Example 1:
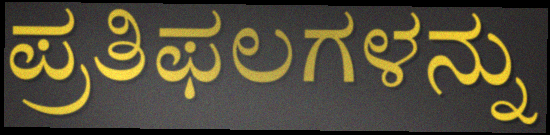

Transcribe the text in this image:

ಪ್ರತಿಫಲಗಳನ್ನು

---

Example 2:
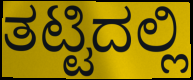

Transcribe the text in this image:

ತಟ್ಟಿದಲ್ಲಿ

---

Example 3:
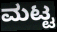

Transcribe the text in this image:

ಮಟ್ಟ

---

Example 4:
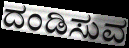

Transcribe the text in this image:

ದಂಡಿಸುವ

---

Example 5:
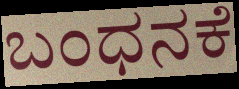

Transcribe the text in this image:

ಬಂಧನಕೆ